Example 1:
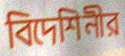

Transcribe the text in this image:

বিদেশিনীর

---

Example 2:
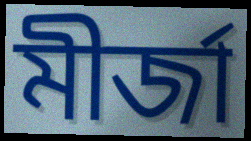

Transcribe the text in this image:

মীর্জা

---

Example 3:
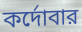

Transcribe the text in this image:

কর্দোবার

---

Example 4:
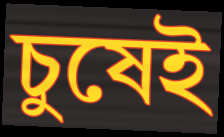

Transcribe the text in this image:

চুষেই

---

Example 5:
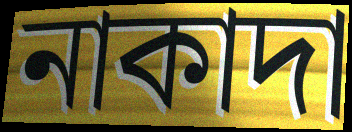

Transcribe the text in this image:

নাকাদা